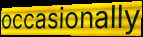
occasionally